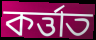
কৰ্ত্তাত